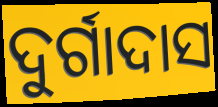
ଦୁର୍ଗାଦାସ